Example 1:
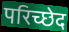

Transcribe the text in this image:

परिच्छेद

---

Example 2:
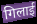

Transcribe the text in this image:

गिलाई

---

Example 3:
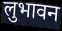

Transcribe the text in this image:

लुभावन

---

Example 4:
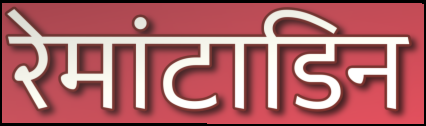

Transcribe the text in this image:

रेमांटाडिन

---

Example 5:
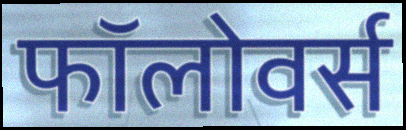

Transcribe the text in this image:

फॉलोवर्स